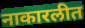
नाकारलीत